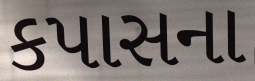
કપાસના